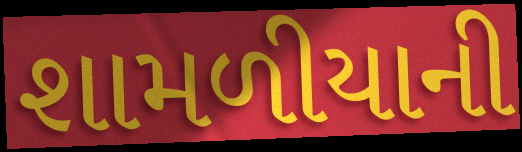
શામળીયાની